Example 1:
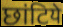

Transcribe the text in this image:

छांटिये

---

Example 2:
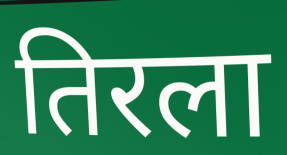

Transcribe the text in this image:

तिरला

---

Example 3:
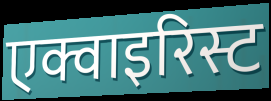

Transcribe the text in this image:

एक्वाइरिस्ट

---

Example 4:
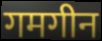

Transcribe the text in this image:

गमगीन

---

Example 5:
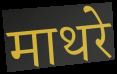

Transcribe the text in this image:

माथरे